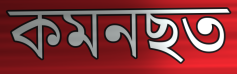
কমনছত